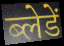
ब्लेडें